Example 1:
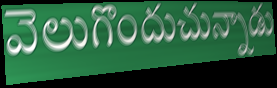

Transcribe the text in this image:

వెలుగొందుచున్నాడు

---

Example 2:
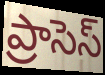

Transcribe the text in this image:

ప్రాసెస్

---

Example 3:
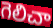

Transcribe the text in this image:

గెలిచా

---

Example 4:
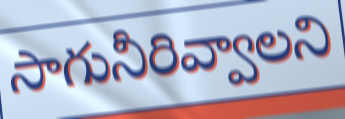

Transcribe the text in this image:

సాగునీరివ్వాలని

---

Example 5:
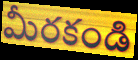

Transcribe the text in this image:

మీరకండి